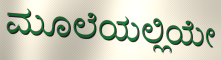
ಮೂಲೆಯಲ್ಲಿಯೇ